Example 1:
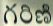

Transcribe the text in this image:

గరిణి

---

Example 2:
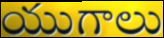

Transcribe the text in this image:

యుగాలు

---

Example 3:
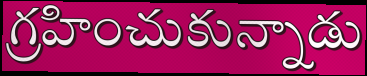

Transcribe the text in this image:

గ్రహించుకున్నాడు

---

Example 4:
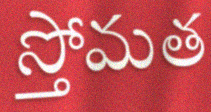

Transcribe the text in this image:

స్తోమత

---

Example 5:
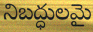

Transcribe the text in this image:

నిబద్ధులమై